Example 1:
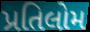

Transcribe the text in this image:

પ્રતિલોમ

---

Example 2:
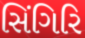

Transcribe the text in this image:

સિંગિરિ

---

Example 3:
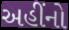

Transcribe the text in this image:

અહીંનો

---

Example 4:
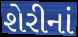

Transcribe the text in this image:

શેરીનાં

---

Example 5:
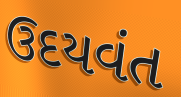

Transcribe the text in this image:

ઉદયવંત